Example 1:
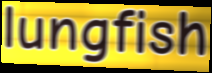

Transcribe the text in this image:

lungfish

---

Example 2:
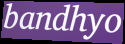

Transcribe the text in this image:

bandhyo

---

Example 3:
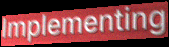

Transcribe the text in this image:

Implementing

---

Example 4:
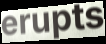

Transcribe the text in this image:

erupts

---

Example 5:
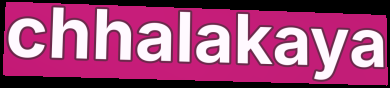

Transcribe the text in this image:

chhalakaya